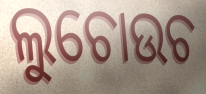
ଲୁଚୋଉଚ